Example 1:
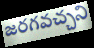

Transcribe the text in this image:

జరగవచ్చని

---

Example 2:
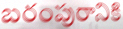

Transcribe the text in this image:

బరంపురానికి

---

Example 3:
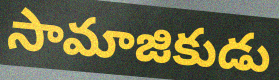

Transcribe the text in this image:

సామాజికుడు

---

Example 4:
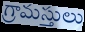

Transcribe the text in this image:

గ్రామస్తులు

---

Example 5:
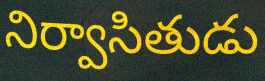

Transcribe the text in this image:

నిర్వాసితుడు